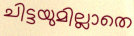
ചിട്ടയുമില്ലാതെ